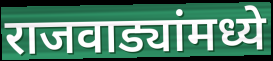
राजवाड्यांमध्ये